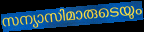
സന്യാസിമാരുടെയും